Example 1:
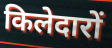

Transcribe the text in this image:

किलेदारों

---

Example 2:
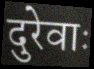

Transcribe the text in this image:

दुरेवाः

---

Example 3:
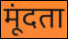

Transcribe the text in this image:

मूंदता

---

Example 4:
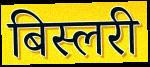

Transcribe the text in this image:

बिस्लरी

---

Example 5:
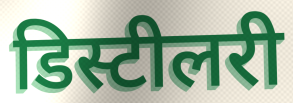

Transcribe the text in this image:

डिस्टीलरी